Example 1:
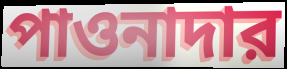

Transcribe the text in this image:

পাওনাদার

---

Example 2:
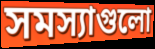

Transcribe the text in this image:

সমস্যাগুলো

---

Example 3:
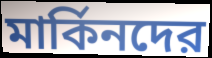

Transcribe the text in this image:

মার্কিনদের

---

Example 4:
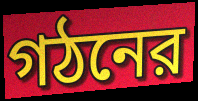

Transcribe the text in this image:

গঠনের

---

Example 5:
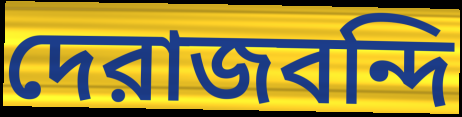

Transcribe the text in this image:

দেরাজবন্দি